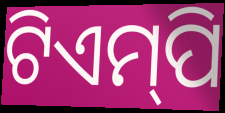
ଟିଏମ୍‌ପି